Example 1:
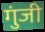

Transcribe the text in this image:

गुंजी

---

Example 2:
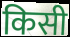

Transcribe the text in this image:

किसी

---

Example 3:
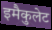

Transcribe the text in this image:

इमैकुलेट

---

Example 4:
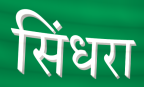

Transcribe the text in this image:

सिंधरा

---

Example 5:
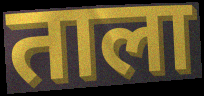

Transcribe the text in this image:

ताला